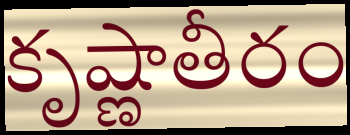
కృష్ణాతీరం